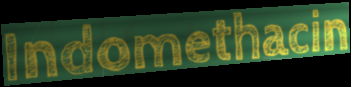
Indomethacin